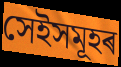
সেইসমূহৰ